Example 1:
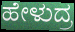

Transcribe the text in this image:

ಹೇಳುದ್ರ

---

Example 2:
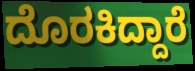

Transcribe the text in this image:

ದೊರಕಿದ್ದಾರೆ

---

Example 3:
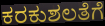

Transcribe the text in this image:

ಕರಕುಶಲತೆಗೆ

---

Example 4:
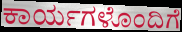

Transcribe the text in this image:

ಕಾರ್ಯಗಳೊಂದಿಗೆ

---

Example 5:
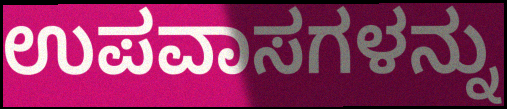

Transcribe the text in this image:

ಉಪವಾಸಗಳನ್ನು